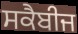
ਸਕੈਬੀਜ